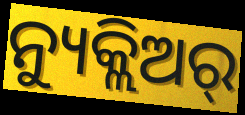
ନ୍ୟୁକ୍ଲିଅର୍